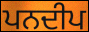
ਪਨਦੀਪ